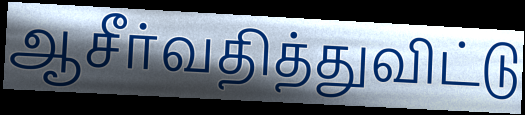
ஆசீர்வதித்துவிட்டு